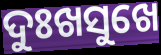
ଦୁଃଖସୁଖେ